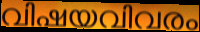
വിഷയവിവരം